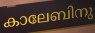
കാലേബിനു